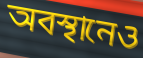
অবস্থানেও